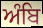
ਅੰਬਿ